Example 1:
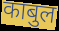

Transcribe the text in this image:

काबुल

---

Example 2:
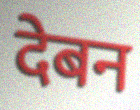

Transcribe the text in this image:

देबन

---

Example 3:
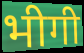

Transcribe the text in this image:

भीगी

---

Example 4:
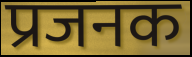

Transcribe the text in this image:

प्रजनक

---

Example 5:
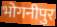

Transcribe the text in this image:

भोगनीपुर